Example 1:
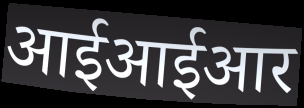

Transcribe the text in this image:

आईआईआर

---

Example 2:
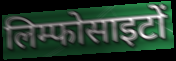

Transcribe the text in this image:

लिम्फोसाइटों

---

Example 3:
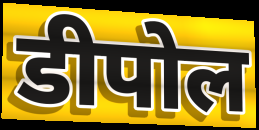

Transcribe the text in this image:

डीपोल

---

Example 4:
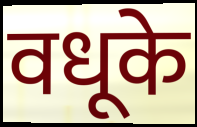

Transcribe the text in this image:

वधूके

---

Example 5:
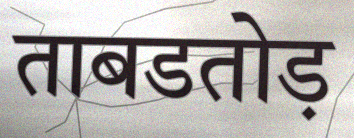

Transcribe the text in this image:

ताबडतोड़